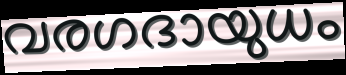
വരഗദായുധം